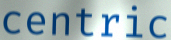
centric